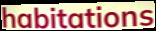
habitations